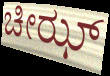
ಚೀಝ್